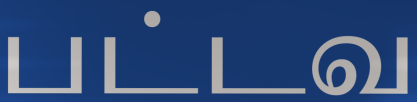
பட்டவ